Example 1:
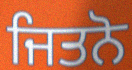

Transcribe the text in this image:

ਜਿਤਨੋ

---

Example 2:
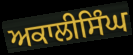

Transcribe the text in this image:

ਅਕਾਲੀਸਿੰਘ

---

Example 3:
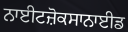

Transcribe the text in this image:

ਨਾਈਟਜ਼ੋਕਸਾਨਾਈਡ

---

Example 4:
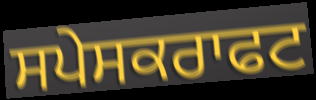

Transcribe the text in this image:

ਸਪੇਸਕਰਾਫਟ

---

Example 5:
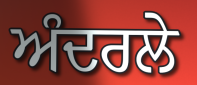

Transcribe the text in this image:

ਅੰਦਰਲੇ